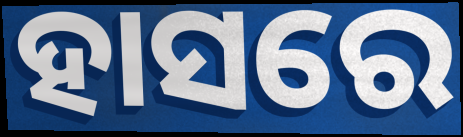
ହାସରେ